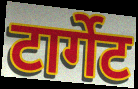
टार्गेट